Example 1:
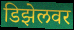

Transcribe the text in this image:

डिझेलवर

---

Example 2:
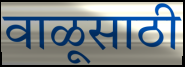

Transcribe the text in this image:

वाळूसाठी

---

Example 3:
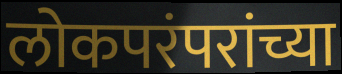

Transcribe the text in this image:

लोकपरंपरांच्या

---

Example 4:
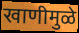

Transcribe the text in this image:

खाणीमुळे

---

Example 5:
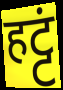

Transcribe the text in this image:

हट्टं